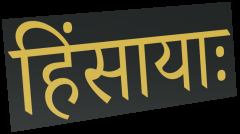
हिंसायाः